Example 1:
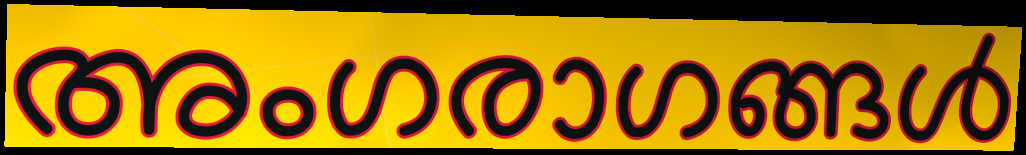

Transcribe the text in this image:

അംഗരാഗങ്ങൾ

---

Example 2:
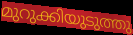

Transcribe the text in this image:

മുറുക്കിയുടുത്തു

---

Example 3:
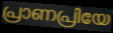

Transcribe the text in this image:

പ്രാണപ്രിയേ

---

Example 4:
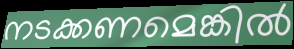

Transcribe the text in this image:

നടക്കണമെങ്കിൽ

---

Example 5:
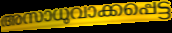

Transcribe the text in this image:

അസാധുവാക്കപ്പെട്ട